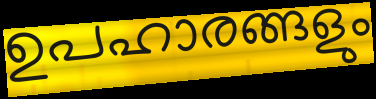
ഉപഹാരങ്ങളും